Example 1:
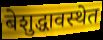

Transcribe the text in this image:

बेशुद्धावस्थेत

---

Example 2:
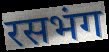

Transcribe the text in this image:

रसभंग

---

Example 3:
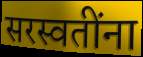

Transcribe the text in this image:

सरस्वतींना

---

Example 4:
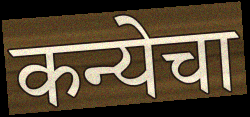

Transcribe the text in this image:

कन्येचा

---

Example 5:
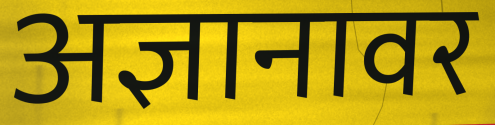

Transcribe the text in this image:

अज्ञानावर